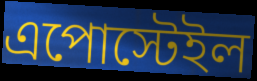
এপোস্টেইল